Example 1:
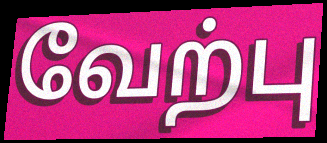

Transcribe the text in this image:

வேற்பு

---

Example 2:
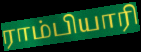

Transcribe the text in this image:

ராம்பியாரி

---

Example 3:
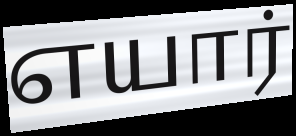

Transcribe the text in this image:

எயார்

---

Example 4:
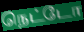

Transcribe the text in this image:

நெட்டோ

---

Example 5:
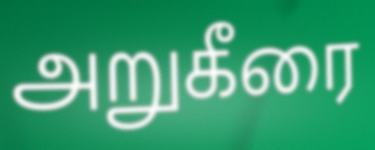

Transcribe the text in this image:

அறுகீரை